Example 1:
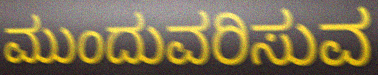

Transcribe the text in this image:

ಮುಂದುವರಿಸುವ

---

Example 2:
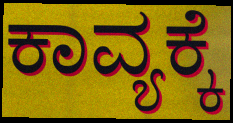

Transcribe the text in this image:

ಕಾವ್ಯಕ್ಕೆ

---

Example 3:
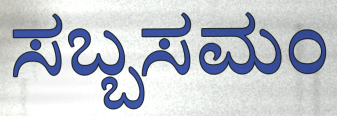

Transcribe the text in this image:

ಸಬ್ಬಸಮಂ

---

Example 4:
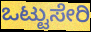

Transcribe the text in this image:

ಒಟ್ಟುಸೇರಿ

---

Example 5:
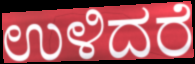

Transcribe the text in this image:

ಉಳಿದರೆ